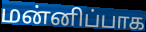
மன்னிப்பாக